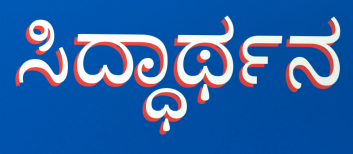
ಸಿದ್ಧಾರ್ಥನ